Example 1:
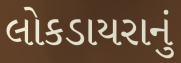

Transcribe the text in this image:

લોકડાયરાનું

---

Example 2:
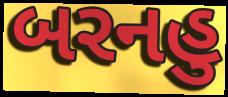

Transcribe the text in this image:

બરનહુ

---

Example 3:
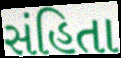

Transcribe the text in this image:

સંહિતા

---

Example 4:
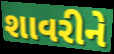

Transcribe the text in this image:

શાવરીને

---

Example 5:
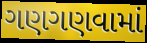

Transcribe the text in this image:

ગણગણવામાં